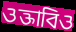
ওক্তাবিও